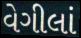
વેગીલાં